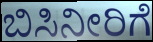
ಬಿಸಿನೀರಿಗೆ